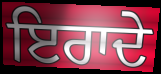
ਇਰਾਦੇ